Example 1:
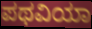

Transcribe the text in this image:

ಪಥವಿಯಾ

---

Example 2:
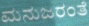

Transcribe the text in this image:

ಮನುಜರಂತೆ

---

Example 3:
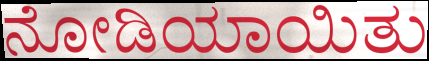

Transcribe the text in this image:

ನೋಡಿಯಾಯಿತು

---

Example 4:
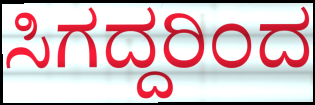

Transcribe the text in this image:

ಸಿಗದ್ದರಿಂದ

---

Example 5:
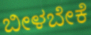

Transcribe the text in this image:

ಬೀಳಬೇಕೆ